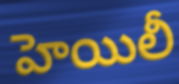
హెయిలీ